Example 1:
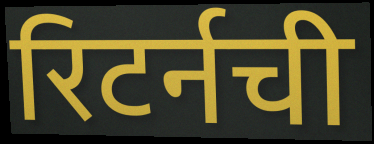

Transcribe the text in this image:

रिटर्नची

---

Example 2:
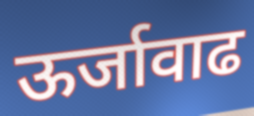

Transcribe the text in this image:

ऊर्जावाढ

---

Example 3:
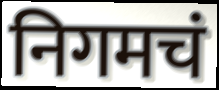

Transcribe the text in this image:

निगमचं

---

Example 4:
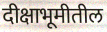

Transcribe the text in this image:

दीक्षाभूमीतील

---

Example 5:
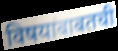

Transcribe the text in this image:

विषयाबाबतची